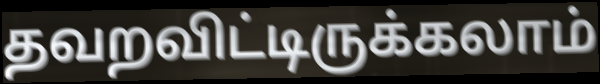
தவறவிட்டிருக்கலாம்